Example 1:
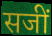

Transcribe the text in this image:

सजीं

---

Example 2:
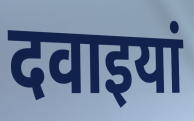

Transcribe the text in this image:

दवाइयां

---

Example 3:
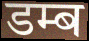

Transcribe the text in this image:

डम्ब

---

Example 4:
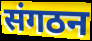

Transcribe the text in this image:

संगठन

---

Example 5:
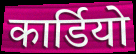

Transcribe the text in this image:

कार्डियो